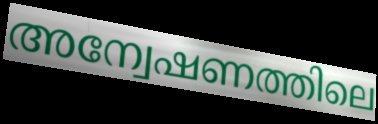
അന്വേഷണത്തിലെ